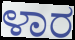
ಳಾರ